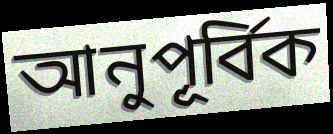
আনুপূর্বিক